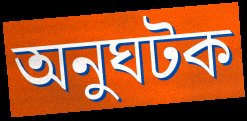
অনুঘটক